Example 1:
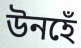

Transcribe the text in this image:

উনহেঁ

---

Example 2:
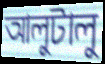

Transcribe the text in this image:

আলুটালু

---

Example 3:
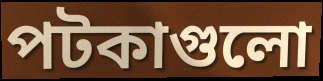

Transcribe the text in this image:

পটকাগুলো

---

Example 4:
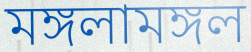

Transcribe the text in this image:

মঙ্গলামঙ্গল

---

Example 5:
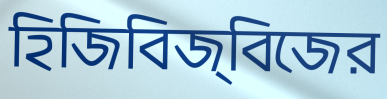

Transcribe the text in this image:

হিজিবিজ্‌বিজের